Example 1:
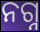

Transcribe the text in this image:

ନଗ୍ନ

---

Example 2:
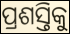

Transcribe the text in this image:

ପ୍ରଶସ୍ତିକୁ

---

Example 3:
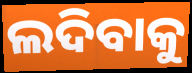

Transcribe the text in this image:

ଲଦିବାକୁ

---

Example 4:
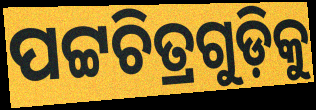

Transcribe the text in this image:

ପଟ୍ଟଚିତ୍ରଗୁଡ଼ିକୁ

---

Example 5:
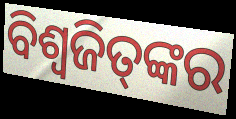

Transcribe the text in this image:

ବିଶ୍ଵଜିତ୍‌ଙ୍କର